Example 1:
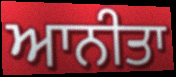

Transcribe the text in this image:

ਆਨੀਤਾ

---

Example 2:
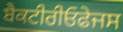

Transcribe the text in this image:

ਬੈਕਟੀਰੀਓਫੇਜਸ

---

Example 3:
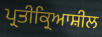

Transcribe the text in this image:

ਪ੍ਰਤੀਕ੍ਰਿਆਸ਼ੀਲ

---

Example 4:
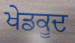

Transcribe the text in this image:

ਖੇਡਕੂਦ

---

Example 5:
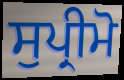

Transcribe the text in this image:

ਸੁਪ੍ਰੀਮੋ